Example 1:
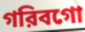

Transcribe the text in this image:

গরিবগো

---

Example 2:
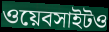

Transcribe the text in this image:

ওয়েবসাইটও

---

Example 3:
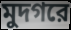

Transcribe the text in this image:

মুদগরে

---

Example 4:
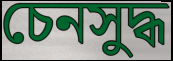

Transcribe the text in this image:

চেনসুদ্ধ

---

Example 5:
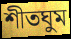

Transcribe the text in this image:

শীতঘুম